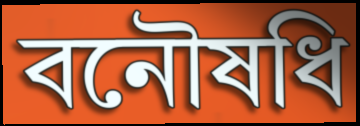
বনৌষধি